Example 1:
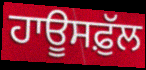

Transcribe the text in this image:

ਹਾਊਸਫ਼ੁੱਲ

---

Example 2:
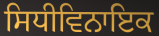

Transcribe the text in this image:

ਸਿਧੀਵਿਨਾਇਕ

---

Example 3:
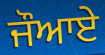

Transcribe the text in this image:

ਜੌਆਏ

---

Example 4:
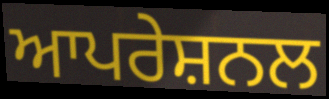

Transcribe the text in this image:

ਆਪਰੇਸ਼ਨਲ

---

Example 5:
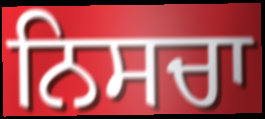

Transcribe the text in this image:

ਨਿਸਚਾ